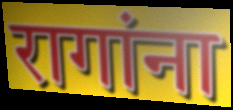
रागांना